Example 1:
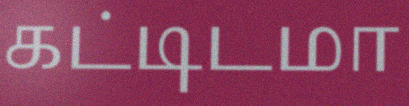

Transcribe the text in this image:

கட்டிடமா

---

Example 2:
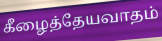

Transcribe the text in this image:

கீழைத்தேயவாதம்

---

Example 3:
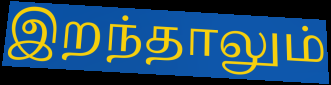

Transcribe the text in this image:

இறந்தாலும்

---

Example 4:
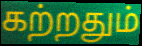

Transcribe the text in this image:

கற்றதும்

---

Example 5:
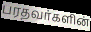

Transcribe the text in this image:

பரதவர்களின்